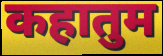
कहातुम